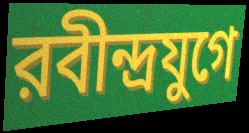
রবীন্দ্রযুগে